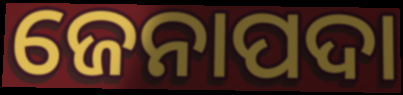
ଜେନାପଦା